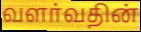
வளர்வதின்